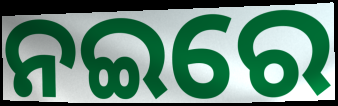
ନଇରେ